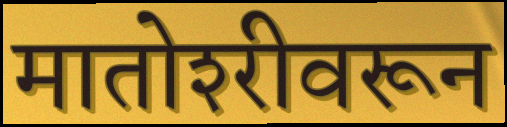
मातोश्रीवरून